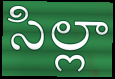
సిల్లా